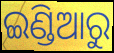
ଇଣ୍ଡିଆରୁ